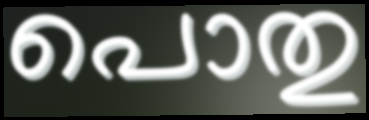
പൊതു